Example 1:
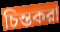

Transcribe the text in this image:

চিন্তকরা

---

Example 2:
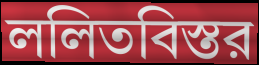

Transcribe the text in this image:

ললিতবিস্তর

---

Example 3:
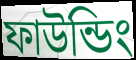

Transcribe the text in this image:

ফাউন্ডিং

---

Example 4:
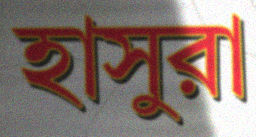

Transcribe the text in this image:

হাসুরা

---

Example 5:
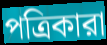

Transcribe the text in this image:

পত্রিকারা